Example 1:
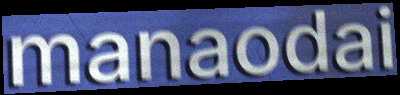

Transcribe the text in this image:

manaodai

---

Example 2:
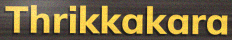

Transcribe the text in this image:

Thrikkakara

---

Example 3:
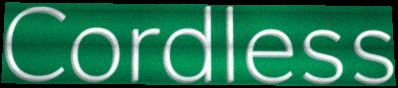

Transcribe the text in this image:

Cordless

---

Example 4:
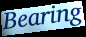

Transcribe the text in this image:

Bearing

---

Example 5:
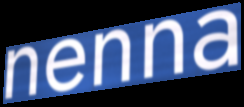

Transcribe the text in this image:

nenna